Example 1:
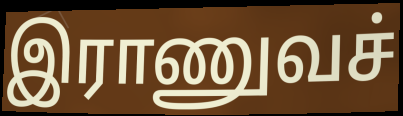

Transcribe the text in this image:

இராணுவச்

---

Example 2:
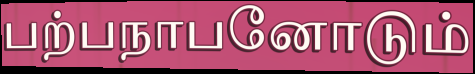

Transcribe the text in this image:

பற்பநாபனோடும்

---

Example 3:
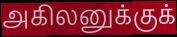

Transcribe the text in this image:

அகிலனுக்குக்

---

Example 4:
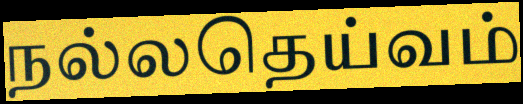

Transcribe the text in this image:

நல்லதெய்வம்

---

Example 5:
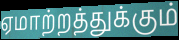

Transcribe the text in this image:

ஏமாற்றத்துக்கும்